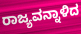
ರಾಜ್ಯವನ್ನಾಳಿದ